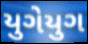
યુગેયુગ